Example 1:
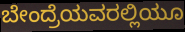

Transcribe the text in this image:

ಬೇಂದ್ರೆಯವರಲ್ಲಿಯೂ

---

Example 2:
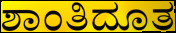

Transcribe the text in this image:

ಶಾಂತಿದೂತ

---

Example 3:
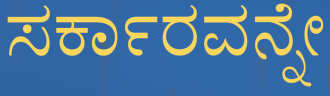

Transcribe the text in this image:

ಸರ್ಕಾರವನ್ನೇ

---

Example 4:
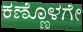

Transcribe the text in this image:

ಕಣ್ಣೊಳಗೇ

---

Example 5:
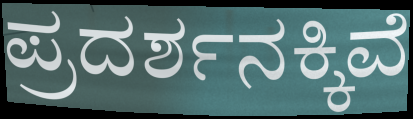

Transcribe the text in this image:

ಪ್ರದರ್ಶನಕ್ಕಿವೆ